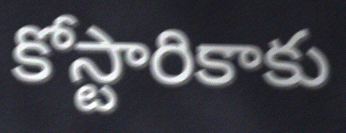
కోస్టారికాకు